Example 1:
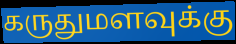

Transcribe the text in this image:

கருதுமளவுக்கு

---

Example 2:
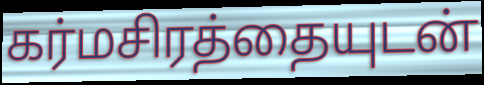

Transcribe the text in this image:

கர்மசிரத்தையுடன்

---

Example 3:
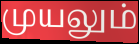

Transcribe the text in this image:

முயலும்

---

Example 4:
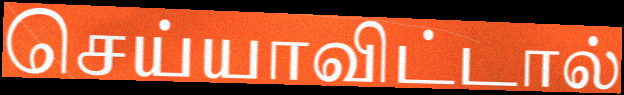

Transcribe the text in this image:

செய்யாவிட்டால்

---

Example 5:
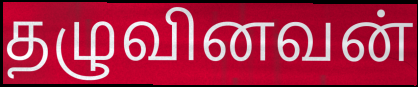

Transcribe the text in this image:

தழுவினவன்